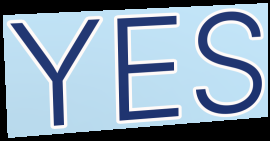
YES